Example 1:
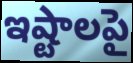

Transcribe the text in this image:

ఇష్టాలపై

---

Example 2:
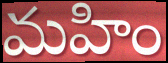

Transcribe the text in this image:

మహిం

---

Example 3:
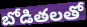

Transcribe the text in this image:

బోడితలతో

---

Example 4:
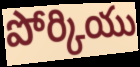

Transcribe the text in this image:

పోర్కియు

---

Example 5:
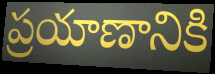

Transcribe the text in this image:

ప్రయాణానికి